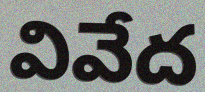
వివేద